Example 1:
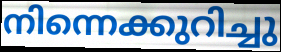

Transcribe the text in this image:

നിന്നെക്കുറിച്ചു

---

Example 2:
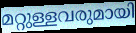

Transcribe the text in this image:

മറ്റുള്ളവരുമായി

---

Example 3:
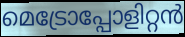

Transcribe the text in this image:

മെട്രോപ്പോളിറ്റൻ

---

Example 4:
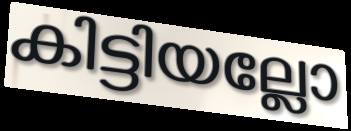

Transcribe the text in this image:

കിട്ടിയല്ലോ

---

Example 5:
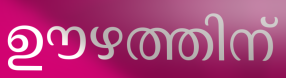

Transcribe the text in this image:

ഊഴത്തിന്